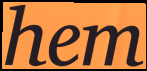
hem